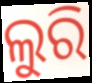
ଲୁରି